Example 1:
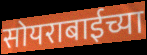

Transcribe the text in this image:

सोयराबाईच्या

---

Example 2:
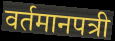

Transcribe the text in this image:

वर्तमानपत्री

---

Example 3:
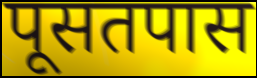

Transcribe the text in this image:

पूसतपास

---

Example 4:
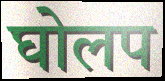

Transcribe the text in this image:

घोलप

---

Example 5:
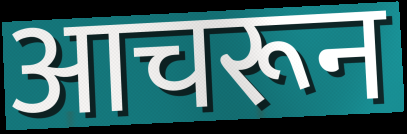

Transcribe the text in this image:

आचरून